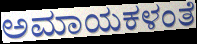
ಅಮಾಯಕಳಂತೆ